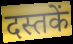
दस्तकें